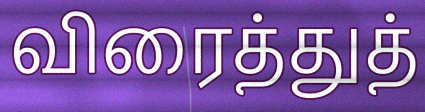
விரைத்துத்